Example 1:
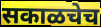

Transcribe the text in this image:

सकाळचेच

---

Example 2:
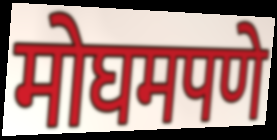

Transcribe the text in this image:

मोघमपणे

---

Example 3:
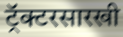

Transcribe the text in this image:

ट्रॅक्टरसारखी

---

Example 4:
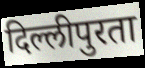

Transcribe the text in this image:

दिल्लीपुरता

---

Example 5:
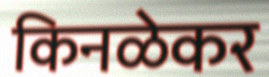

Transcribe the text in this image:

किनळेकर